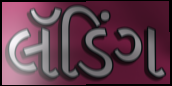
લૅડિંગ